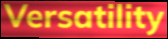
Versatility